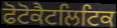
ਫੋਟੋਕੈਟਲਿਟਿਕ